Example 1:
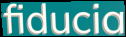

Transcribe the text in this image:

fiducia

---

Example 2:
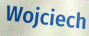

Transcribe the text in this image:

Wojciech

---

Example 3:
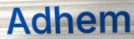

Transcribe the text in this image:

Adhem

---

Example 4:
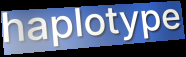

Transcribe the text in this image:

haplotype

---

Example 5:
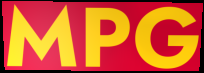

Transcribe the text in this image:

MPG